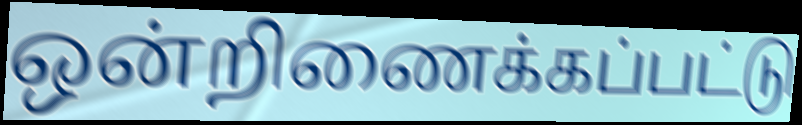
ஒன்றிணைக்கப்பட்டு